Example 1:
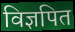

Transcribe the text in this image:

विज्ञपित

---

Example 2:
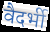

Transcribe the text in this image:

वैदर्भी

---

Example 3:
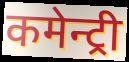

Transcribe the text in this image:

कमेन्ट्री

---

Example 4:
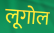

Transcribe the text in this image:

लूगोल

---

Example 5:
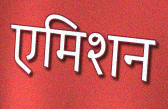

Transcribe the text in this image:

एमिशन